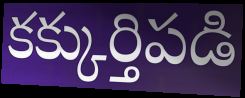
కక్కుర్తిపడి